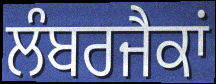
ਲੰਬਰਜੈਕਾਂ